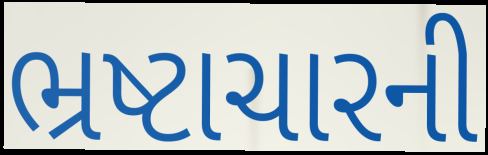
ભ્રષ્ટાચારની